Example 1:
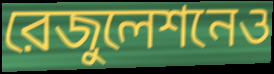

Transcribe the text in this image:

রেজুলেশনেও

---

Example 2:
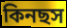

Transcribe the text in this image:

কিনছস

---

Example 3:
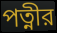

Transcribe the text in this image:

পত্নীর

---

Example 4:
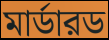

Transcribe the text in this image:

মার্ডারড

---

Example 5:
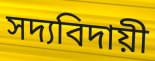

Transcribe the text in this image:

সদ্যবিদায়ী